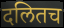
दलितच